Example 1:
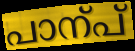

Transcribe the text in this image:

പാന്പ്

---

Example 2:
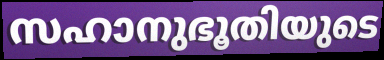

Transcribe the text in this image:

സഹാനുഭൂതിയുടെ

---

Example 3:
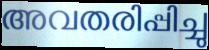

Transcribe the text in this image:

അവതരിപ്പിച്ചു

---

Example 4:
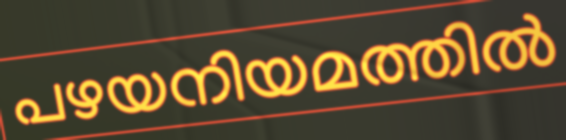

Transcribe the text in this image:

പഴയനിയമത്തിൽ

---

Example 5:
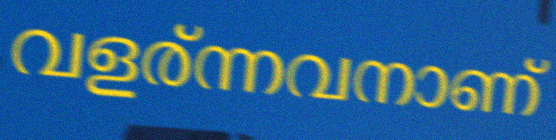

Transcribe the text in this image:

വളര്ന്നവനാണ്